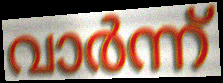
വാർന്ന്